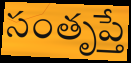
సంతృప్తే